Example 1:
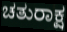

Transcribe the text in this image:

ಚತುರಾಕ್ಷ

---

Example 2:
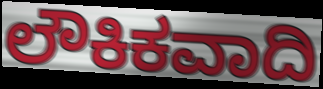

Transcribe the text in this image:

ಲೌಕಿಕವಾದಿ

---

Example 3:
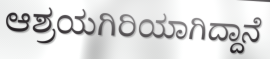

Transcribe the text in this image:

ಆಶ್ರಯಗಿರಿಯಾಗಿದ್ದಾನೆ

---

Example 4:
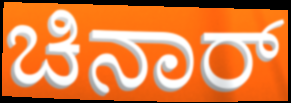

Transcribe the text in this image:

ಚಿನಾರ್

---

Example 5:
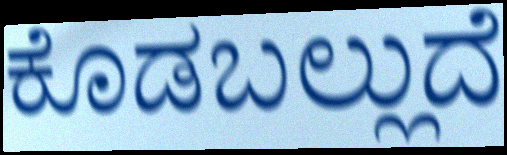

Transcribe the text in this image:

ಕೊಡಬಲ್ಲುದೆ